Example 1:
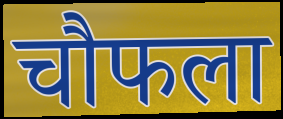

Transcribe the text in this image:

चौफला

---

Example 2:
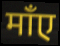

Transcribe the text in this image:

माँए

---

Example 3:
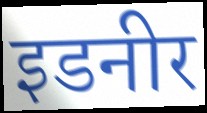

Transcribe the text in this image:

इडनीर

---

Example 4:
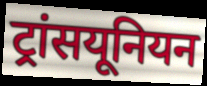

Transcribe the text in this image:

ट्रांसयूनियन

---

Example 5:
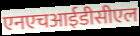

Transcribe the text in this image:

एनएचआईडीसीएल